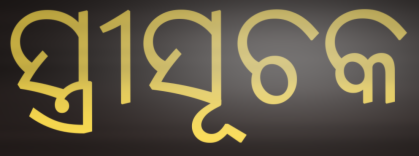
ସ୍ତ୍ରୀସୂଚକ